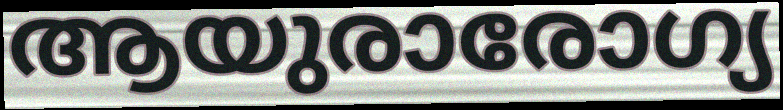
ആയുരാരോഗ്യ